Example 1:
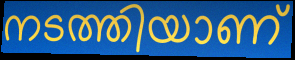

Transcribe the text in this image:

നടത്തിയാണ്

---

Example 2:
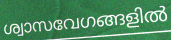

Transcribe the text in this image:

ശ്വാസവേഗങ്ങളിൽ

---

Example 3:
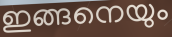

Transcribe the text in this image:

ഇങ്ങനെയും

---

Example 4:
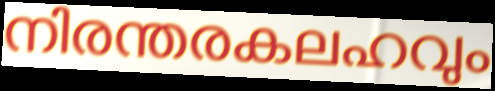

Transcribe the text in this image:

നിരന്തരകലഹവും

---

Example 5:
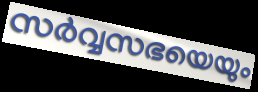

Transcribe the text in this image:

സർവ്വസഭയെയും